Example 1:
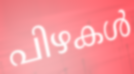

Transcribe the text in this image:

പിഴകൾ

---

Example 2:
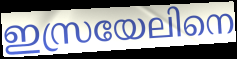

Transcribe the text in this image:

ഇസ്രയേലിനെ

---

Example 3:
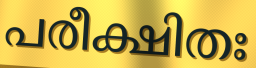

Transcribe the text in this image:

പരീക്ഷിതഃ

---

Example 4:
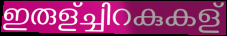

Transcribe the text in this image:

ഇരുള്ച്ചിറകുകള്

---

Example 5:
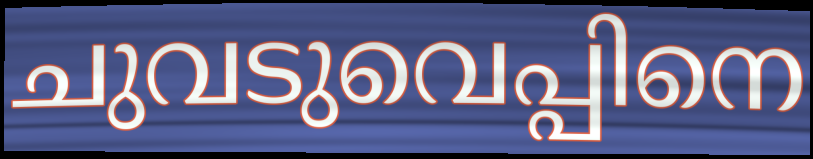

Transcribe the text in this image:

ചുവടുവെപ്പിനെ